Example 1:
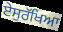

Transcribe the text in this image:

ਏਸੁਰੱਖਿਆ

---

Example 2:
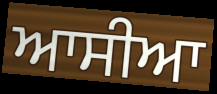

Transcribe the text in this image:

ਆਸੀਆ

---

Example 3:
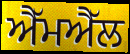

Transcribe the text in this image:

ਐੱਮਐੱਲ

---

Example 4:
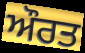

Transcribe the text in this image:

ਔਰਤ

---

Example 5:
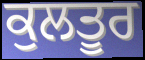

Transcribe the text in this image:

ਕੁਲਤੂਰ